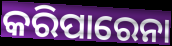
କରିପାରେନା